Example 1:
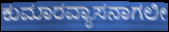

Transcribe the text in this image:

ಕುಮಾರವ್ಯಾಸನಾಗಲೀ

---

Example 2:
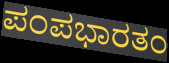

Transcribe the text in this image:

ಪಂಪಭಾರತಂ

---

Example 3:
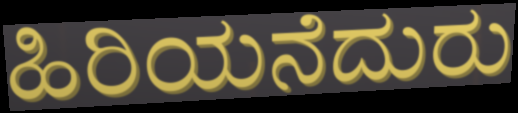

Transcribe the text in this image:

ಹಿರಿಯನೆದುರು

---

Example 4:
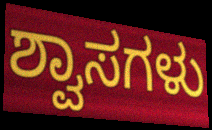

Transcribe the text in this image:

ಶ್ವಾಸಗಳು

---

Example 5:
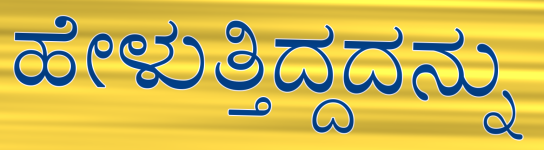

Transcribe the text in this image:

ಹೇಳುತ್ತಿದ್ದದನ್ನು